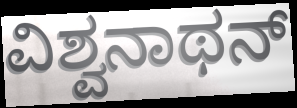
ವಿಶ್ವನಾಥನ್